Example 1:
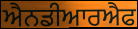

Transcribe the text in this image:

ਐਨਡੀਆਰਐਫ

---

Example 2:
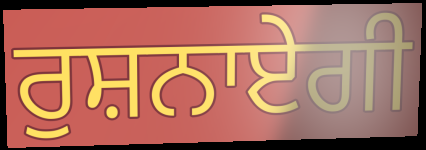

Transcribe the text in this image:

ਰੁਸ਼ਨਾਏਗੀ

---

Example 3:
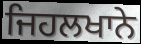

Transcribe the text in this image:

ਜਿਹਲਖਾਨੇ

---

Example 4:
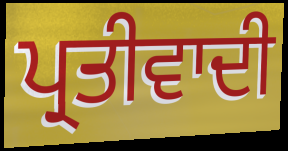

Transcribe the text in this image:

ਪ੍ਰਤੀਵਾਦੀ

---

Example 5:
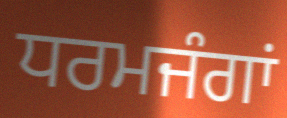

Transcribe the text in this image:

ਧਰਮਜੰਗਾਂ